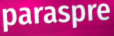
paraspre